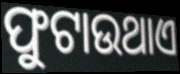
ଫୁଟାଉଥାଏ